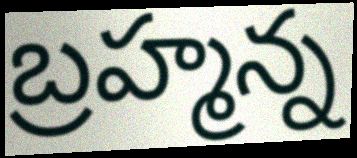
బ్రహ్మన్న